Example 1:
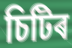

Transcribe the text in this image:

চিটিৰ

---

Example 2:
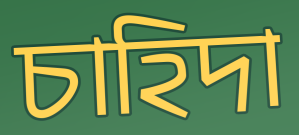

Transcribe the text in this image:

চাহিদা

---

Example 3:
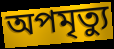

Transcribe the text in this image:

অপমৃত্যু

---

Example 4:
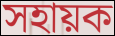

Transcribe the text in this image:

সহায়ক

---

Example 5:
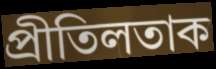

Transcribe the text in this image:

প্ৰীতিলতাক